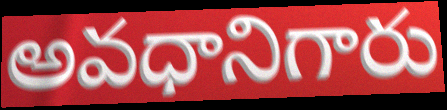
అవధానిగారు